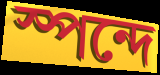
স্পন্দে